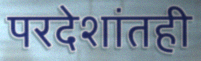
परदेशांतही